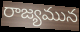
రాజ్యమున